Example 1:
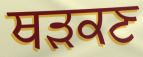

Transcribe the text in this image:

ਥੜਕਣ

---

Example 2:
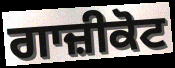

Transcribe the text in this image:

ਗਾਜ਼ੀਕੋਟ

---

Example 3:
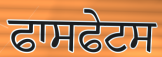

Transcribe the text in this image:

ਫਾਸਫੇਟਸ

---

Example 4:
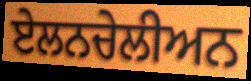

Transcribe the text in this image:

ਏਲਨਚੇਲੀਅਨ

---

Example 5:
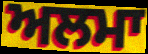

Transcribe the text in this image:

ਅਲਮਾ